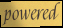
powered